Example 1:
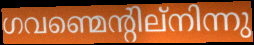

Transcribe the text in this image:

ഗവണ്മെന്റില്നിന്നു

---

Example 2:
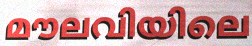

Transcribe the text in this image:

മൗലവിയിലെ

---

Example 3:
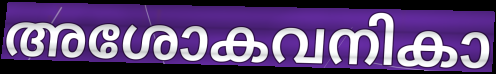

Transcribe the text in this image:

അശോകവനികാ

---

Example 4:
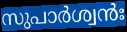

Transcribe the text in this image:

സുപാർശ്വൻഃ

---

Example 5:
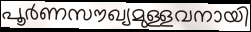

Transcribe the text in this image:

പൂർണസൗഖ്യമുള്ളവനായി